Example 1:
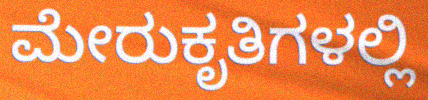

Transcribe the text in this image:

ಮೇರುಕೃತಿಗಳಲ್ಲಿ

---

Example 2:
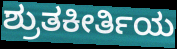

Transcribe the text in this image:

ಶ್ರುತಕೀರ್ತಿಯ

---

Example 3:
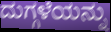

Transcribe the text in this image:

ದುಗ್ಗಳೆಯನ್ನು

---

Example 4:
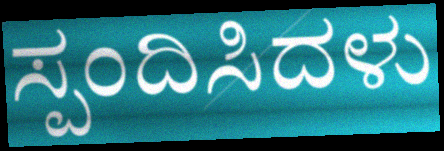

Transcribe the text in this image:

ಸ್ಪಂದಿಸಿದಳು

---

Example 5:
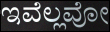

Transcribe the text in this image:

ಇವೆಲ್ಲವೋ